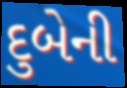
દુબેની